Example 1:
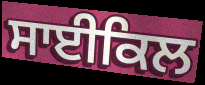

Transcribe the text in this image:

ਸਾਈਕਿਲ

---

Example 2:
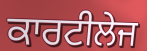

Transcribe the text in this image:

ਕਾਰਟੀਲੇਜ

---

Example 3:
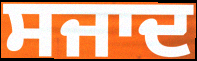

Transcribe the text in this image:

ਸਜਾਦ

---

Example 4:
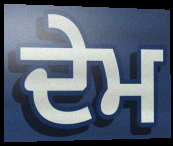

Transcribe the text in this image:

ਦੇਮ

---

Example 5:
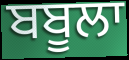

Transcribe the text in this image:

ਬਬੂਲਾ